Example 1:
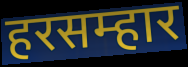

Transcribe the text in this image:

हरसम्हार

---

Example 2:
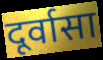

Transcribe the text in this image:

दूर्वासा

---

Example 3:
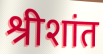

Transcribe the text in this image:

श्रीशांत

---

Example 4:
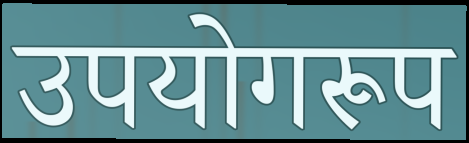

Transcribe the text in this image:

उपयोगरूप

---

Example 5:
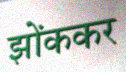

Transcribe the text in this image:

झोंककर